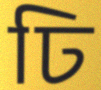
ঢি